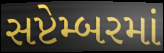
સપ્ટેમ્બરમાં